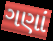
ગણાં